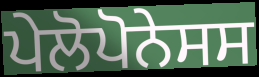
ਪੇਲੋਪੋਨੇਸਸ